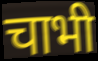
चाभी